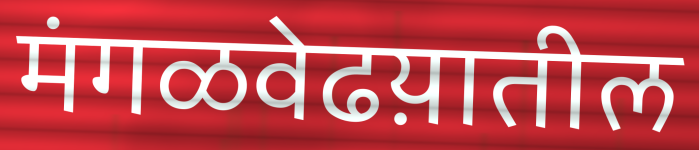
मंगळवेढय़ातील